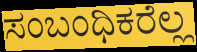
ಸಂಬಂಧಿಕರೆಲ್ಲ